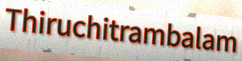
Thiruchitrambalam